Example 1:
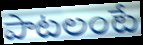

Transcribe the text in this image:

పాటలంటే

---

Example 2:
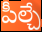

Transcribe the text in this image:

పీల్చే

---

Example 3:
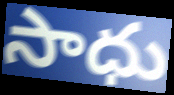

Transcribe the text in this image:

సాధు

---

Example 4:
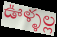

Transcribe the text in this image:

ఊళ్ళల్ల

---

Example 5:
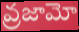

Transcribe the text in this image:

వ్రజామో